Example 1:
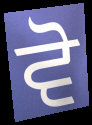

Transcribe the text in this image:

ਵੋ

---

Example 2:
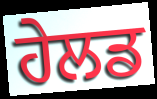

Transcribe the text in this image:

ਹੇਲਡ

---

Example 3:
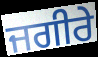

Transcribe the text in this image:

ਜਗੀਰੇ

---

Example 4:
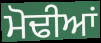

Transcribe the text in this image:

ਮੋਢੀਆਂ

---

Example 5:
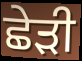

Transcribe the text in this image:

ਛੇੜੀ